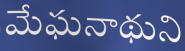
మేఘనాథుని